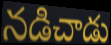
నడిచాడు